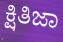
ಕ್ಷಿತಿಜಾ